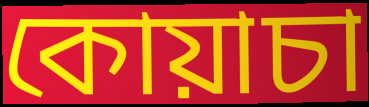
কোয়াচা